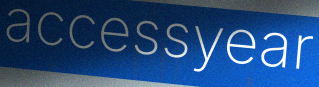
accessyear